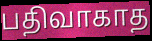
பதிவாகாத